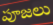
పూజలు